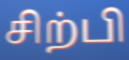
சிற்பி